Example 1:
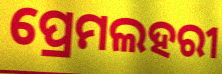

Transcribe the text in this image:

ପ୍ରେମଲହରୀ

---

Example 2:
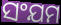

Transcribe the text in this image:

ସଂଯମ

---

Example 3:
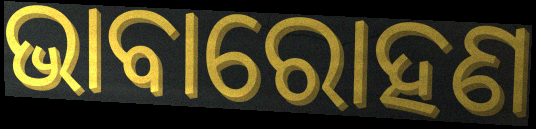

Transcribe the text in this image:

ଭାବାରୋହଣ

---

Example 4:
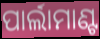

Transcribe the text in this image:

ପାର୍ଲାମାଣ୍ଟ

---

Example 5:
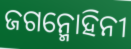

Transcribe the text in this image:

ଜଗନ୍ମୋହିନୀ